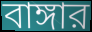
বাঙ্গার